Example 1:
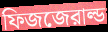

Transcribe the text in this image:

ফিজজেরাল্ড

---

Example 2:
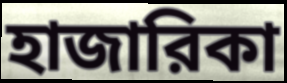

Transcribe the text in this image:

হাজারিকা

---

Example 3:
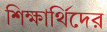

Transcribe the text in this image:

শিক্ষার্থিদের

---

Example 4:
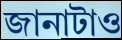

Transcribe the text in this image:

জানাটাও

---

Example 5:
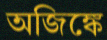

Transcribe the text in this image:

অজিঙ্কে